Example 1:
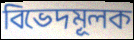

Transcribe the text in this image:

বিভেদমূলক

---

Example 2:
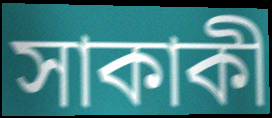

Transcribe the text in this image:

সাকাকী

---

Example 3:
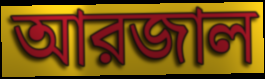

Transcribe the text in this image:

আরজাল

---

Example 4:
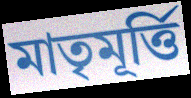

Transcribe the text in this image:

মাতৃমূর্ত্তি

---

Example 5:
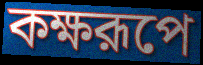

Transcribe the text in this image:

কক্ষরূপে